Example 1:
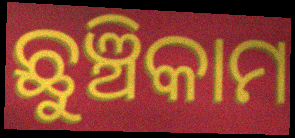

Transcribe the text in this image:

ଛୁଞ୍ଚିକାମ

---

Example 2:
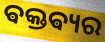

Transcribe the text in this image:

ଵକ୍ତଵ୍ୟର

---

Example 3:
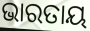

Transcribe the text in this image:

ଭାରତାୟ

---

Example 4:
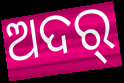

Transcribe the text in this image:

ଅଦର୍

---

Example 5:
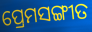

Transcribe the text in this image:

ପ୍ରେମସଙ୍ଗୀତ